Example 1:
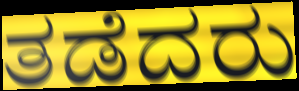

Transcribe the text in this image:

ತಡೆದರು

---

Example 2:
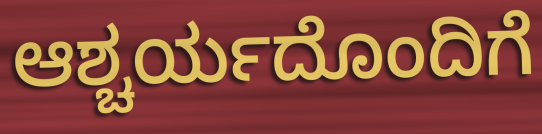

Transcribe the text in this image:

ಆಶ್ಚರ್ಯದೊಂದಿಗೆ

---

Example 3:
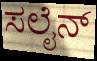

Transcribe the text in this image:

ಸಲೈನ್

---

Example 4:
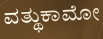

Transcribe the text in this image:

ವತ್ಥುಕಾಮೋ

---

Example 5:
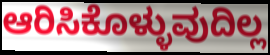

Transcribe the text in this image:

ಆರಿಸಿಕೊಳ್ಳುವುದಿಲ್ಲ